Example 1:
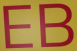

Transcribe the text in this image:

EB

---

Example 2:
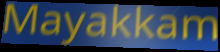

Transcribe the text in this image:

Mayakkam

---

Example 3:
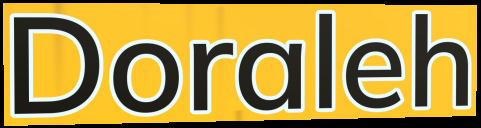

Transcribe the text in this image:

Doraleh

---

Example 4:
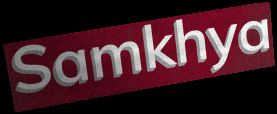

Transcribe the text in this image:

Samkhya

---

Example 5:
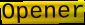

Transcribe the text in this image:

Opener